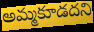
అమ్మకూడదని